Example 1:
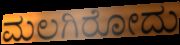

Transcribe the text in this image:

ಮಲಗಿರೋದು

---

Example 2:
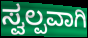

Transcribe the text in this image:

ಸ್ವಲ್ಪವಾಗಿ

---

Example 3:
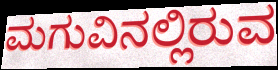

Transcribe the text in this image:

ಮಗುವಿನಲ್ಲಿರುವ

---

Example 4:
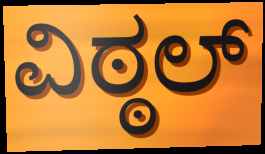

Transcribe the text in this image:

ವಿಠ್ಠಲ್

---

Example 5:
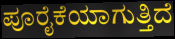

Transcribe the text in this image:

ಪೂರೈಕೆಯಾಗುತ್ತಿದೆ